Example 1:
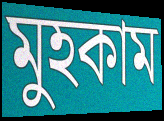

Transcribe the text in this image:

মুহকাম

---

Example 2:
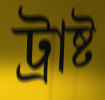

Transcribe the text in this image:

ট্ৰাষ্ট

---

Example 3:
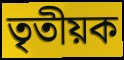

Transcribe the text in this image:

তৃতীয়ক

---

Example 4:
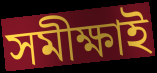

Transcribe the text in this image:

সমীক্ষাই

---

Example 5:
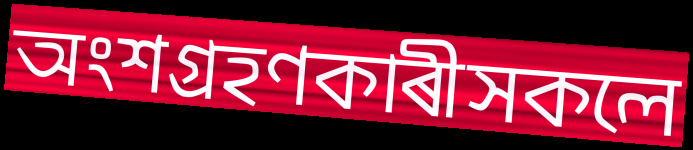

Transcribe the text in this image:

অংশগ্ৰহণকাৰীসকলে